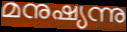
മനുഷ്യന്നു